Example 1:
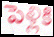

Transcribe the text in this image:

పెళ్లికి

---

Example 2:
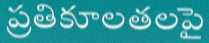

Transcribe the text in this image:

ప్రతికూలతలపై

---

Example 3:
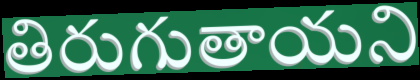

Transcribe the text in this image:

తిరుగుతాయని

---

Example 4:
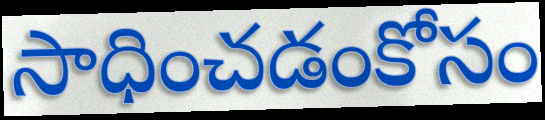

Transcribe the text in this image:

సాధించడంకోసం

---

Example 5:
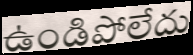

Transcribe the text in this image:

ఉండిపోలేదు